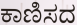
ಕಾಣಿಸದ